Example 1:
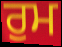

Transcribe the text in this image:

ਰੁਮ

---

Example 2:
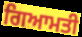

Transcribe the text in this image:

ਗਿਆਮਤੀ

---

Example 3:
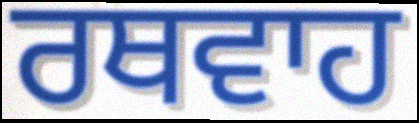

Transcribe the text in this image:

ਰਥਵਾਹ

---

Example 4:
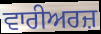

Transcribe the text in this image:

ਵਾਰੀਅਰਜ਼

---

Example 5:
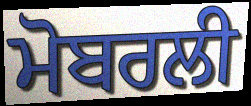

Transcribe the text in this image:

ਮੋਬਰਲੀ